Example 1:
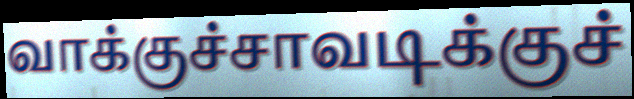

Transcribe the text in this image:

வாக்குச்சாவடிக்குச்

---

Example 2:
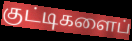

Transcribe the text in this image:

குட்டிகளைப்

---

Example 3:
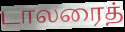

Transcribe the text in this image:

டாலரைத்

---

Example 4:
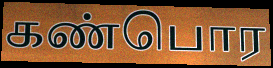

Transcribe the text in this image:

கண்பொர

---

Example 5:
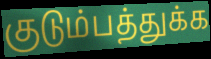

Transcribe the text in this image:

குடும்பத்துக்க